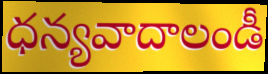
ధన్యవాదాలండీ